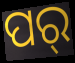
ପର୍